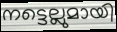
നട്ടെല്ലുമായി